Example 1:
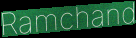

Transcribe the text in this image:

Ramchand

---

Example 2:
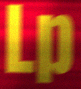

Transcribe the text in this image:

Lp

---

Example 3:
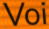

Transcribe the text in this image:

Voi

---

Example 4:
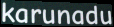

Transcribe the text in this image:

karunadu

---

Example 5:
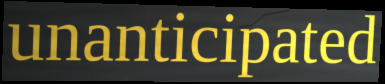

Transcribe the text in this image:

unanticipated